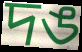
দঙ